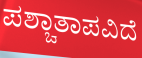
ಪಶ್ಚಾತಾಪವಿದೆ